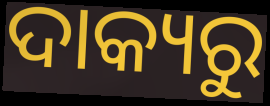
ଦାକ୍ୟରୁ